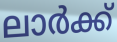
ലാർക്ക്